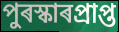
পুৰস্কাৰপ্ৰাপ্ত